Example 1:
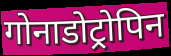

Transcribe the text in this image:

गोनाडोट्रोपिन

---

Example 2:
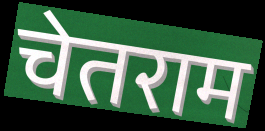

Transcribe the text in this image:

चेतराम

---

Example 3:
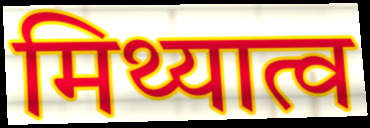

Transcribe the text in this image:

मिथ्‍यात्‍व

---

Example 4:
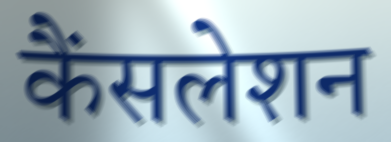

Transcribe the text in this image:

कैंसलेशन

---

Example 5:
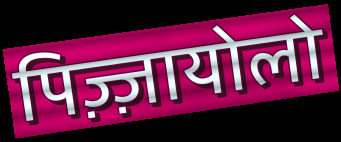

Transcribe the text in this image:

पिज़्ज़ायोलो